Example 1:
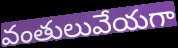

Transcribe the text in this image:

వంతులువేయగా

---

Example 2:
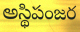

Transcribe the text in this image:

అస్థిపంజర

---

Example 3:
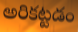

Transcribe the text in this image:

అరికట్టడం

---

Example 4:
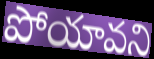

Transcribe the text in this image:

పోయావని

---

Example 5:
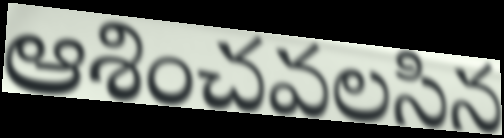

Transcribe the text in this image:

ఆశించవలసిన